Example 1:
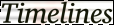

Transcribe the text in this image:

Timelines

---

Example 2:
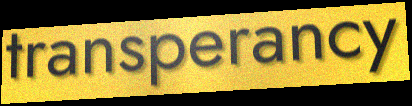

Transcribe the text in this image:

transperancy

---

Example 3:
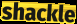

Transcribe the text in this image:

shackle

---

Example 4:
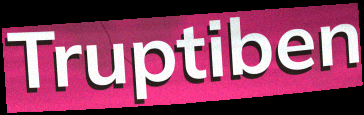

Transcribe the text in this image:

Truptiben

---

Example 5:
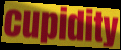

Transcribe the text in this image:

cupidity